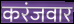
करंजवार